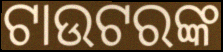
ଟାଉଟରଙ୍କ